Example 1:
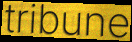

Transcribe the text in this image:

tribune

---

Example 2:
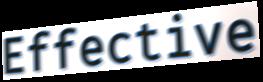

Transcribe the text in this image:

Effective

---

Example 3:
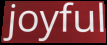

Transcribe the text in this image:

joyful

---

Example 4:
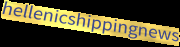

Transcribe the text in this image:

hellenicshippingnews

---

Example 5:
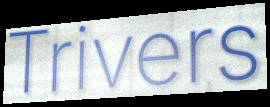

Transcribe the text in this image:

Trivers